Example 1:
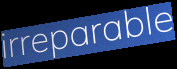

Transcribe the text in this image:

irreparable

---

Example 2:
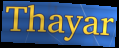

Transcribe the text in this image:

Thayar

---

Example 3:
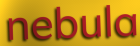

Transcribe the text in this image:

nebula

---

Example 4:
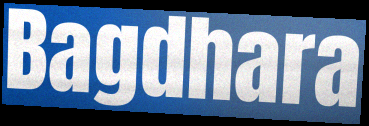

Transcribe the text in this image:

Bagdhara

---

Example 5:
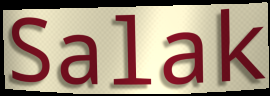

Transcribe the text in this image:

Salak